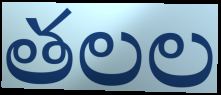
తలల